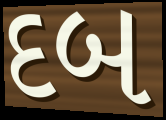
દબ